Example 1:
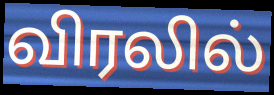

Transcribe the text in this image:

விரலில்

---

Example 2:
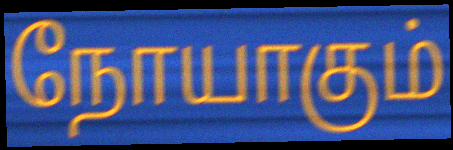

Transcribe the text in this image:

நோயாகும்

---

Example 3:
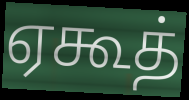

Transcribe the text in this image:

ஏகூத்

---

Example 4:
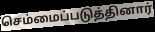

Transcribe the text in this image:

செம்மைப்படுத்தினார்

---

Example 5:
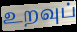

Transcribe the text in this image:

உறவுப்